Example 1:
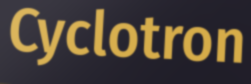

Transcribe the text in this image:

Cyclotron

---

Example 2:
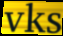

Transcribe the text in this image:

vks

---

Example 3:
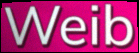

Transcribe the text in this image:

Weib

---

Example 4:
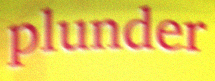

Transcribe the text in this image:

plunder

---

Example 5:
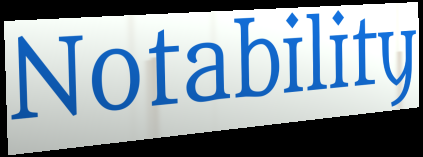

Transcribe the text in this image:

Notability